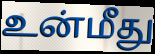
உன்மீது